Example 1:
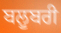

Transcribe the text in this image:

ਬਲੂਬਰੀ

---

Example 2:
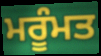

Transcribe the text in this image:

ਮਰੂੰਮਤ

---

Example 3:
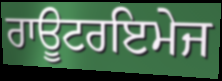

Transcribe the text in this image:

ਰਾਊਟਰਇਮੇਜ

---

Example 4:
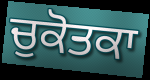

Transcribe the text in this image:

ਚੁਕੋਤਕਾ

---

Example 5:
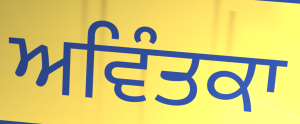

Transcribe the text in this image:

ਅਵਿੰਤਕਾ